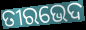
ତୀରଭେଦ